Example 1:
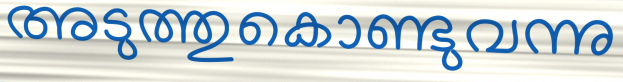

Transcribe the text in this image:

അടുത്തുകൊണ്ടുവന്നു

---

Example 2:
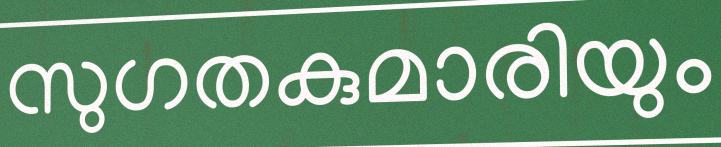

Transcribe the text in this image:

സുഗതകുമാരിയും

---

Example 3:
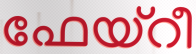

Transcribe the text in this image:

ഫേയ്റീ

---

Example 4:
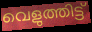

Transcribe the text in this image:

വെളുത്തിട്ട്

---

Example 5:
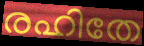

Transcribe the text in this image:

രഹിതേ